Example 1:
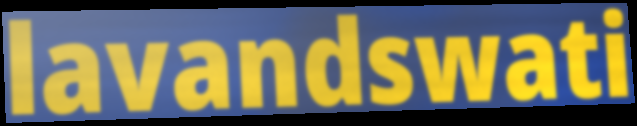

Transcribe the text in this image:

lavandswati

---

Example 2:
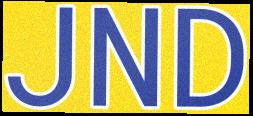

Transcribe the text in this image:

JND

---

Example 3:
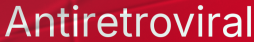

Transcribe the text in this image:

Antiretroviral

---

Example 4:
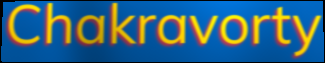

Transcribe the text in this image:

Chakravorty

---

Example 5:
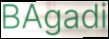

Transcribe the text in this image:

BAgadi